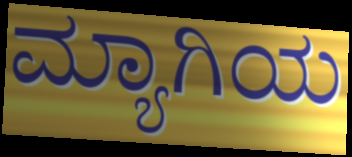
ಮ್ಯಾಗಿಯ